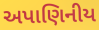
અપાણિનીય